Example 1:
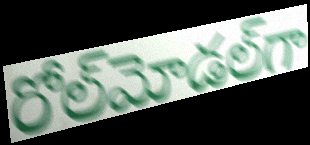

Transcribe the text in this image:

రోల్‌మోడల్‌గా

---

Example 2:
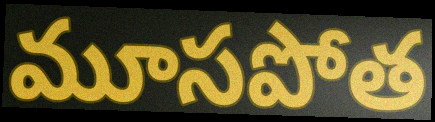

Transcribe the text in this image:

మూసపోత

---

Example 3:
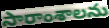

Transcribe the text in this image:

సారాంశాలను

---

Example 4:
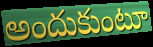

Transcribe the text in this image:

అందుకుంటూ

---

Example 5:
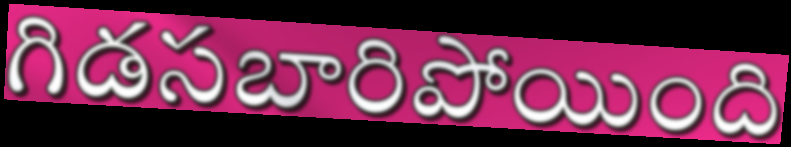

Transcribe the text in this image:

గిడసబారిపోయింది